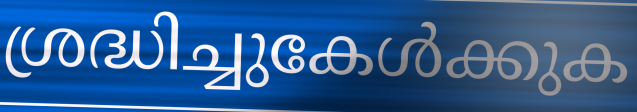
ശ്രദ്ധിച്ചുകേൾക്കുക